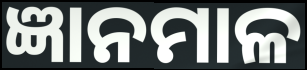
ଜ୍ଞାନମାଳ